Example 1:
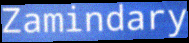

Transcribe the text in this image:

Zamindary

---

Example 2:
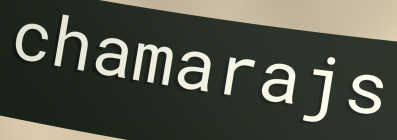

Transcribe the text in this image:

chamarajs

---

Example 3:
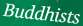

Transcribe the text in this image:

Buddhists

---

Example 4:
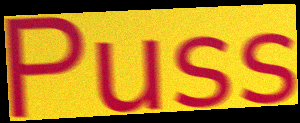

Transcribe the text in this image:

Puss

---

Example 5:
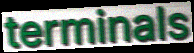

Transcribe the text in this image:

terminals